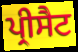
ਪ੍ਰੀਸੈਟ